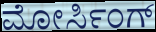
ಮೋರ್ಸಿಂಗ್